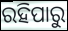
ରହିପାରୁ